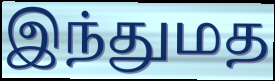
இந்துமத